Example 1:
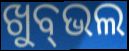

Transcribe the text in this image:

ଖୁବ୍‌ଭଲ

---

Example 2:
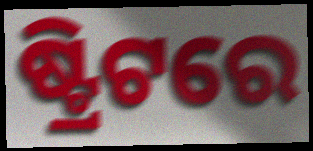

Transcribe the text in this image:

ଷ୍ଟ୍ରିଟରେ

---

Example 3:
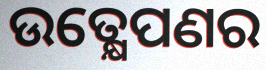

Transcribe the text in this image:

ଉତ୍କ୍ଷେପଣର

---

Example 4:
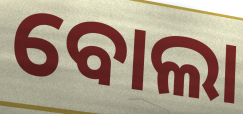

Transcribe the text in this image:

ବୋଲା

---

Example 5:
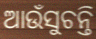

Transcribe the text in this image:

ଆଉଁସୁଚନ୍ତି